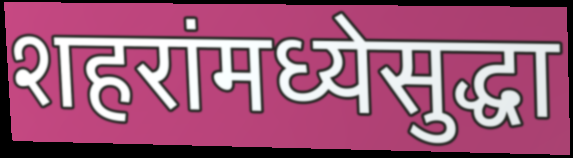
शहरांमध्येसुद्धा